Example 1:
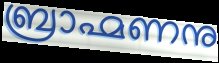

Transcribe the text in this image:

ബ്രാഹ്മണനു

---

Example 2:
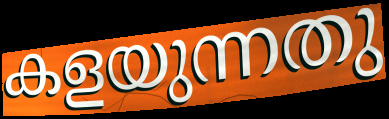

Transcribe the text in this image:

കളയുന്നതു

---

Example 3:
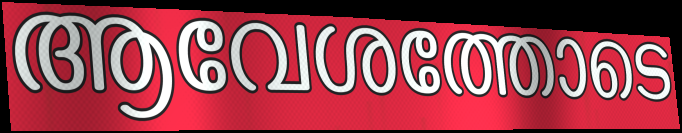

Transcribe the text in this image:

ആവേശത്തോടെ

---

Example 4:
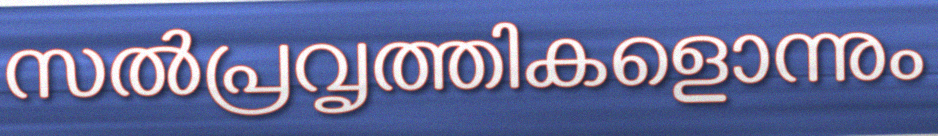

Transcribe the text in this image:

സൽപ്രവൃത്തികളൊന്നും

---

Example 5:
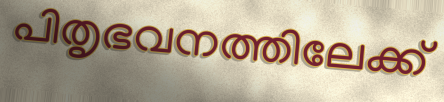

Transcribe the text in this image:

പിതൃഭവനത്തിലേക്ക്